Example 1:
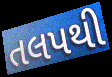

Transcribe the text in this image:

તલપથી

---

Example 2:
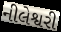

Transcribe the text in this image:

નીલેશ્વરી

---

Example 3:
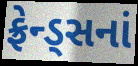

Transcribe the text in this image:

ફ્રેન્ડ્સનાં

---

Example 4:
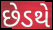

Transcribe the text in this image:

છેડથે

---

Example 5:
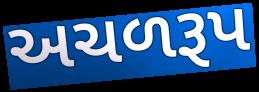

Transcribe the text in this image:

અચળરૂપ